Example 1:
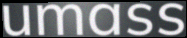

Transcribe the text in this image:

umass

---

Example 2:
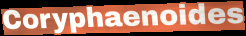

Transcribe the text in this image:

Coryphaenoides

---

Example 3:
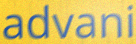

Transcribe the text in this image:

advani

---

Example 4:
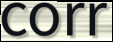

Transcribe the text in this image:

corr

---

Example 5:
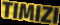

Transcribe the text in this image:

TIMIZI